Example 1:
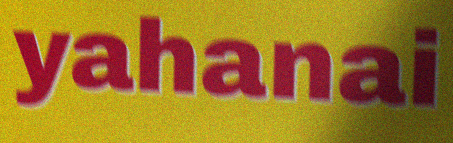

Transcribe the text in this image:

yahanai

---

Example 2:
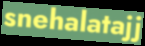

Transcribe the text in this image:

snehalatajj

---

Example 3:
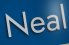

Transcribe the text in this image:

Neal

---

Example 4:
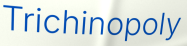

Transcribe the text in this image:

Trichinopoly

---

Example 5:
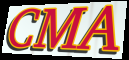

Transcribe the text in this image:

CMA